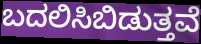
ಬದಲಿಸಿಬಿಡುತ್ತವೆ